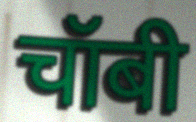
चॉबी